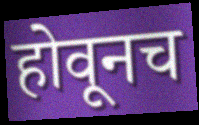
होवूनच